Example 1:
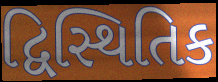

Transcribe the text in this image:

દ્વિસ્થિતિક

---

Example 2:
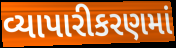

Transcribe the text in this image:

વ્યાપારીકરણમાં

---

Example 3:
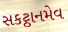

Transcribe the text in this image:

સકટ્ઠાનમેવ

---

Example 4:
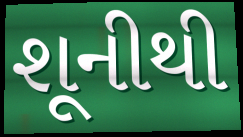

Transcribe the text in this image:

શૂનીથી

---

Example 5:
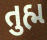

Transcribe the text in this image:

તુહ્મ